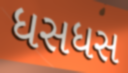
ધસધસ